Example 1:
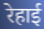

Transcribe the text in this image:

रेहाई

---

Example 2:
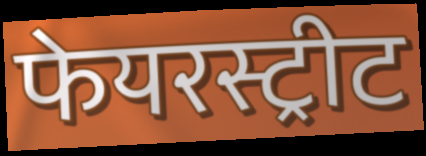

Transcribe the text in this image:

फेयरस्ट्रीट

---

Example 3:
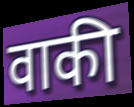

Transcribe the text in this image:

वाकी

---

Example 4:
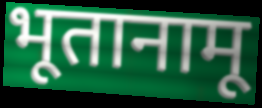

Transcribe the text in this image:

भूतानामू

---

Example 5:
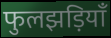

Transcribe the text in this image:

फुलझड़ियाँ